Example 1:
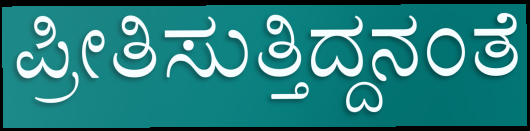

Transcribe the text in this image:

ಪ್ರೀತಿಸುತ್ತಿದ್ದನಂತೆ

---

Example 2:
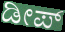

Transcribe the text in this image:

ಡೀಪ್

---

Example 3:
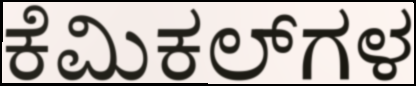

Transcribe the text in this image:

ಕೆಮಿಕಲ್‌ಗಳ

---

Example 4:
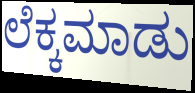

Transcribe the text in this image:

ಲೆಕ್ಕಮಾಡು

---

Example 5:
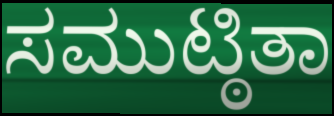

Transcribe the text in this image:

ಸಮುಟ್ಠಿತಾ